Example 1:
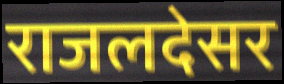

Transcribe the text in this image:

राजलदेसर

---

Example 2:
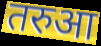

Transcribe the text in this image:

तरुआ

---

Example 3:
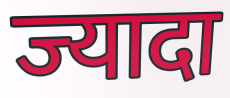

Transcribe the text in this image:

ज्‍यादा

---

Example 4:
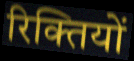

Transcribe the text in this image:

रिक्तियों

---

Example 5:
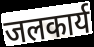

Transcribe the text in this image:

जलकार्य